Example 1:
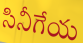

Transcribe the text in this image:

సినీగేయ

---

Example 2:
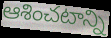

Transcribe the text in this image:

ఆశించటాన్ని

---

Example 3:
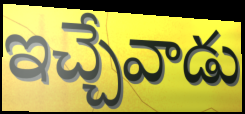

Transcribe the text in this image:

ఇచ్చేవాడు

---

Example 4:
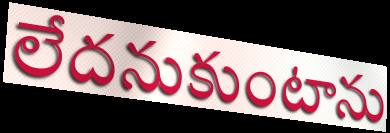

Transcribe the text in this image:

లేదనుకుంటాను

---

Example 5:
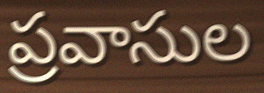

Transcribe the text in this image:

ప్రవాసుల